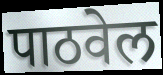
पाठवेल